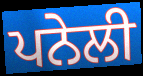
ਪਨੇਲੀ